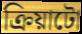
ক্ৰিয়াটো